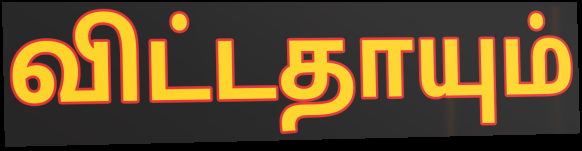
விட்டதாயும்